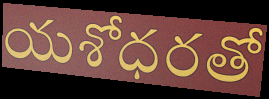
యశోధరతో